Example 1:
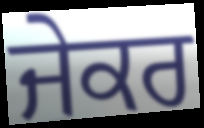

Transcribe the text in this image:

ਜੇਕਰ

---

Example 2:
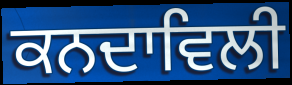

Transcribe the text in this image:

ਕਨਦਾਵਿਲੀ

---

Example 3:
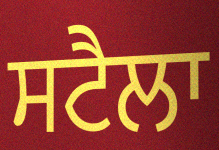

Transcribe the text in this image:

ਸਟੈਲਾ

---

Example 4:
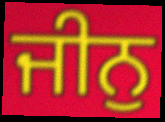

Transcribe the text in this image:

ਜੀਨੁ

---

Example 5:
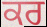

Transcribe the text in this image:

ਕਰ